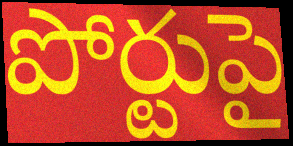
పోర్టుపై